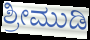
ಶ್ರೀಮುಡಿ